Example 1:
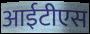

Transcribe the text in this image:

आईटीएस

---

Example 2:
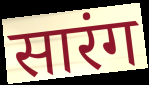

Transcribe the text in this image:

सारंग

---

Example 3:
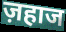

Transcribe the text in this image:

ज़हाज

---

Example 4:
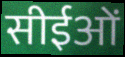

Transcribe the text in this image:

सीईओं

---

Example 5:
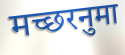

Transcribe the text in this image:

मच्छरनुमा